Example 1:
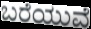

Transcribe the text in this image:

ಬರೆಯುವೆ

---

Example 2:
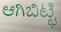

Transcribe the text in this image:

ಆಗಿಬಿಟ್ಟಿ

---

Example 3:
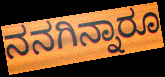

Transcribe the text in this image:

ನನಗಿನ್ನಾರೂ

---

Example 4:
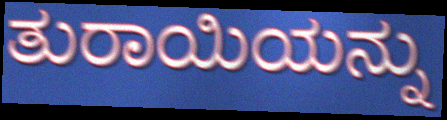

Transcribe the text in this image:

ತುರಾಯಿಯನ್ನು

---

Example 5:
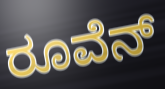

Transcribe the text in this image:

ರೂವೆನ್